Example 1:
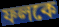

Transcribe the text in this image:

ফলকে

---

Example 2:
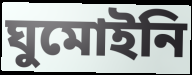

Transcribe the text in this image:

ঘুমোইনি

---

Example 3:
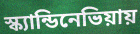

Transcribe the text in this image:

স্ক্যান্ডিনেভিয়ায়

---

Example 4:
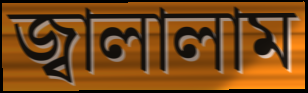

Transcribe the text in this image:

জ্বালালাম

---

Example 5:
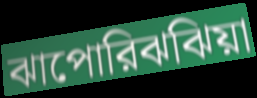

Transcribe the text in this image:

ঝাপোরিঝঝিয়া